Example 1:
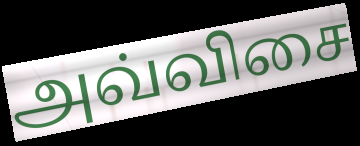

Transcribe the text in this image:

அவ்விசை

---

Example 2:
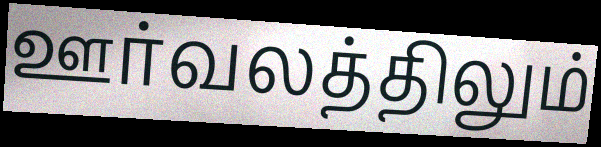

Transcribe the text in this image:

ஊர்வலத்திலும்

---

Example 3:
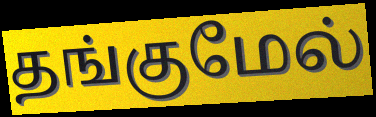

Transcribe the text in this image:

தங்குமேல்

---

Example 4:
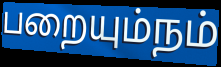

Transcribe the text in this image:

பறையும்நம்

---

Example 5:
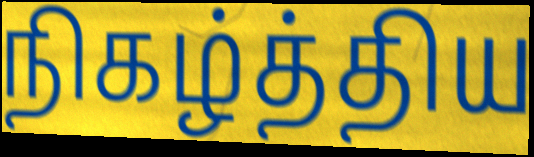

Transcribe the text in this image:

நிகழ்த்திய